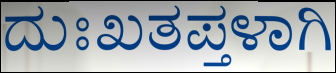
ದುಃಖತಪ್ತಳಾಗಿ